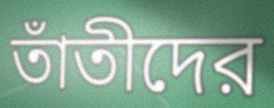
তাঁতীদের